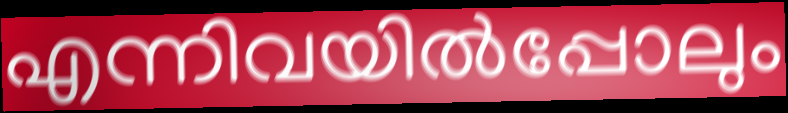
എന്നിവയിൽപ്പോലും